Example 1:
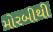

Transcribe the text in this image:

મોરબીથી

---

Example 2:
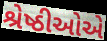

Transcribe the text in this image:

શ્રેષ્ઠીઓએ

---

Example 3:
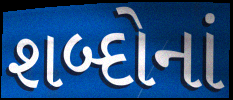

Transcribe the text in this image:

શબ્દોનાં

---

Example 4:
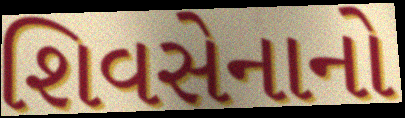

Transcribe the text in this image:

શિવસેનાનો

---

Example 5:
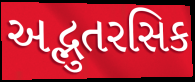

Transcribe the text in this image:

અદ્ભુતરસિક